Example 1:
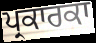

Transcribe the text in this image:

ਪ੍ਰਕਾਰਕਾ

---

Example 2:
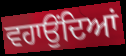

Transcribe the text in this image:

ਵਹਾਉਂਦਿਆਂ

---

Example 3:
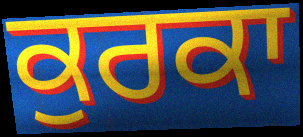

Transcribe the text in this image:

ਕੁਰਕਾ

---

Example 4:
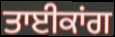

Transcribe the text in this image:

ਤਾਈਕਾਂਗ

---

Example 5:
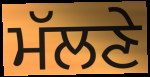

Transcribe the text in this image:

ਮੱਲਣੇ